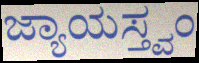
ಜ್ಯಾಯಸ್ತ್ವಂ